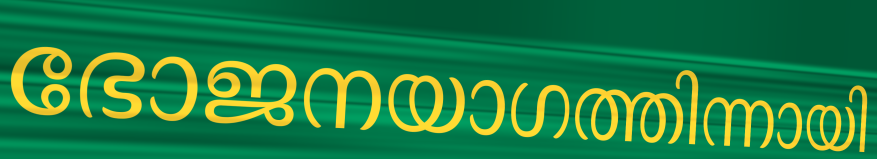
ഭോജനയാഗത്തിന്നായി